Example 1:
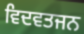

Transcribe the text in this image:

ਵਿਦਵਤਜਨ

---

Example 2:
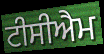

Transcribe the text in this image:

ਟੀਸੀਐਮ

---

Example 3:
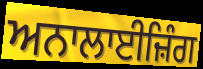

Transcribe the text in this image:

ਅਨਾਲਾਈਜ਼ਿੰਗ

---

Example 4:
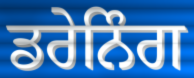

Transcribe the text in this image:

ਡਰੇਨਿੰਗ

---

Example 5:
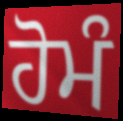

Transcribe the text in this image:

ਹੋਮੰ